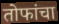
तोफांचा